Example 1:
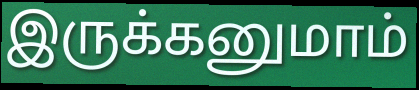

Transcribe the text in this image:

இருக்கனுமாம்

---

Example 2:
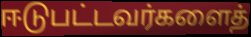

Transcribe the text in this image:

ஈடுபட்டவர்களைத்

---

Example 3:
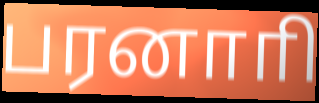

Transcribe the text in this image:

பரனாரி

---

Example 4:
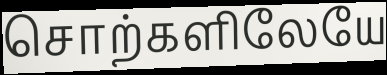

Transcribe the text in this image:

சொற்களிலேயே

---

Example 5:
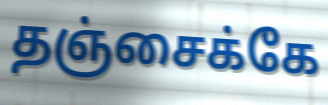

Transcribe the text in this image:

தஞ்சைக்கே